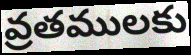
వ్రతములకు